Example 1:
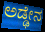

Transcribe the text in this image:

ಅಡ್ಢೇನ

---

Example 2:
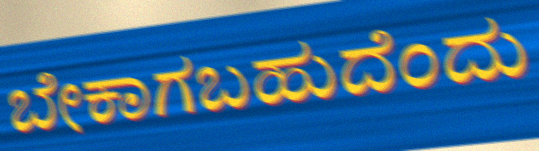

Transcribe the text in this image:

ಬೇಕಾಗಬಹುದೆಂದು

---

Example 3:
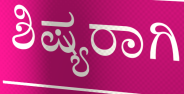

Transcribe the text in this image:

ಶಿಷ್ಯರಾಗಿ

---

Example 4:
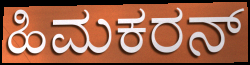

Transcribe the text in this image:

ಹಿಮಕರನ್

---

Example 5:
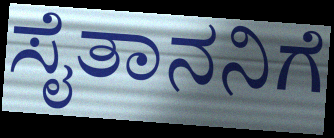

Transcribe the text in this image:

ಸೈತಾನನಿಗೆ